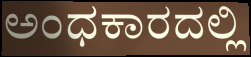
ಅಂಧಕಾರದಲ್ಲಿ